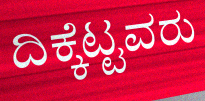
ದಿಕ್ಕೆಟ್ಟವರು